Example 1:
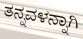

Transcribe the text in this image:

ತನ್ನವಳನ್ನಾಗಿ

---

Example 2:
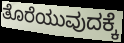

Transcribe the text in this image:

ತೊರೆಯುವುದಕ್ಕೆ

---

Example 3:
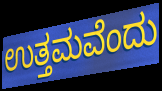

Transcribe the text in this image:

ಉತ್ತಮವೆಂದು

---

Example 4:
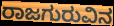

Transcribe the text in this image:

ರಾಜಗುರುವಿನ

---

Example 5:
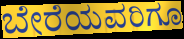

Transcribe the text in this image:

ಬೇರೆಯವರಿಗೂ